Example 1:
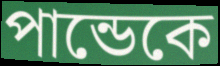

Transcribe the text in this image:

পান্ডেকে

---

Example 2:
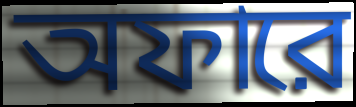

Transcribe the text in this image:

অফারে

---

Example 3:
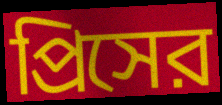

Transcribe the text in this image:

প্রিসের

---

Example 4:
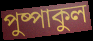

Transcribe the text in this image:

পুষ্পাকুল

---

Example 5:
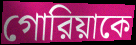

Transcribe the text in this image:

গোরিয়াকে